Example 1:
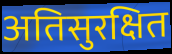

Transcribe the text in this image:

अतिसुरक्षित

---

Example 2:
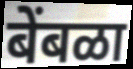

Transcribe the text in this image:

बेंबळा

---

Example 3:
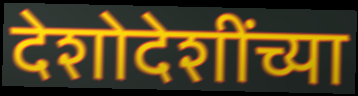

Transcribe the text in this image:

देशोदेशींच्या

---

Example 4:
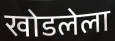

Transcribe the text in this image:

खोडलेला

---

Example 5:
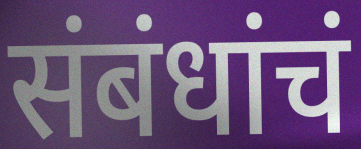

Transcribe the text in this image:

संबंधांचं